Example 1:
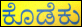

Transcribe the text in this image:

ಕೊಡೆಕು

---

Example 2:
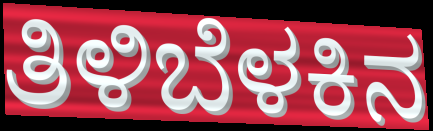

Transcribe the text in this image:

ತಿಳಿಬೆಳಕಿನ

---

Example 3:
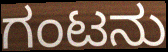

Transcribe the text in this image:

ಗಂಟನು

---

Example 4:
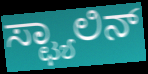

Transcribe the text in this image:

ಸ್ಟ್ಯಾಲಿನ್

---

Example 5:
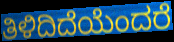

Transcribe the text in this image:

ತಿಳಿದಿದೆಯೆಂದರೆ